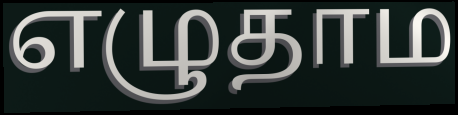
எழுதாம